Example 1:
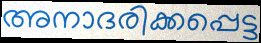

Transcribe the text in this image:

അനാദരിക്കപ്പെട്ട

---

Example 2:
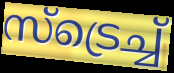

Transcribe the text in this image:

സ്ട്രെച്ച്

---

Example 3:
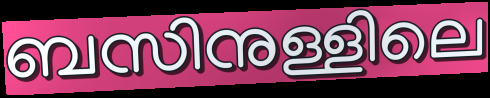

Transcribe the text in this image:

ബസിനുള്ളിലെ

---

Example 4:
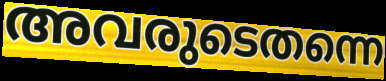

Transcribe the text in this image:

അവരുടെതന്നെ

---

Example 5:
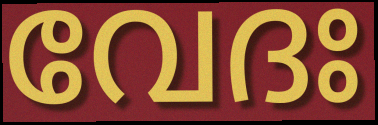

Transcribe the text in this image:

വേദഃ